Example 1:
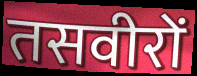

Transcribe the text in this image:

तसवीरों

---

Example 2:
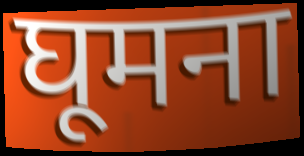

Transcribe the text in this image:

घूमना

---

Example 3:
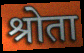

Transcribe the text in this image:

श्रोता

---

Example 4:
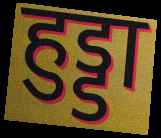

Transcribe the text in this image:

हुड्डा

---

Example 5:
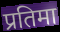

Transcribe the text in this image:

प्रतिमा